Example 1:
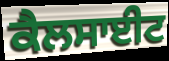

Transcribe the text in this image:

ਕੈਲਸਾਈਟ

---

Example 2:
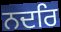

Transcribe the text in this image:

ਨਦਰਿ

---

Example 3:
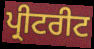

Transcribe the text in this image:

ਪ੍ਰੀਟਰੀਟ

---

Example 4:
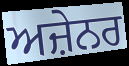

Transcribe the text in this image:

ਅਜ਼ੇਨਰ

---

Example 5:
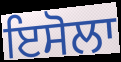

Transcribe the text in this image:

ਇਸੋਲਾ